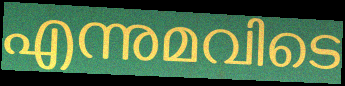
എന്നുമവിടെ